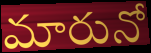
మారునో